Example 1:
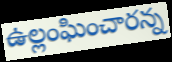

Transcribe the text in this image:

ఉల్లంఘించారన్న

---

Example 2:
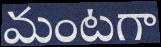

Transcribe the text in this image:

మంటగా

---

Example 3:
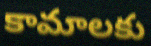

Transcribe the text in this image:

కామాలకు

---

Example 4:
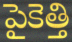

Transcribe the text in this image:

పైకెత్తి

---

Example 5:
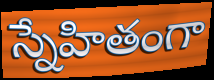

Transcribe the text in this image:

స్నేహితంగా